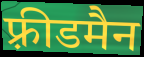
फ़्रीडमैन